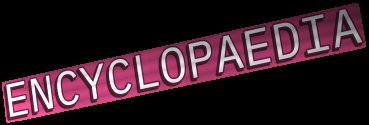
ENCYCLOPAEDIA